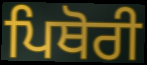
ਪਿਥੋਰੀ